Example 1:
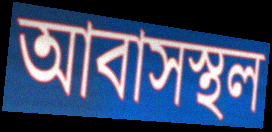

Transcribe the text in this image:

আবাসস্থল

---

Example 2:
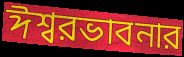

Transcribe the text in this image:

ঈশ্বরভাবনার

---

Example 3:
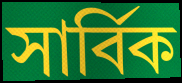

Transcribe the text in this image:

সার্বিক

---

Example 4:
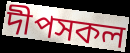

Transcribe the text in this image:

দীপসকল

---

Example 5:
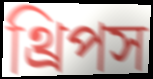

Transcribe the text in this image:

থ্রিপস